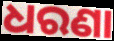
ଧରଣା